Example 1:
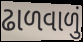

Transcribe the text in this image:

ઢાળવાળું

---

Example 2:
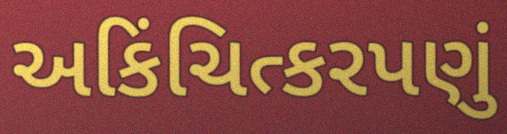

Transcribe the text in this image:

અકિંચિત્કરપણું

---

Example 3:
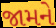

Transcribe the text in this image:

જામને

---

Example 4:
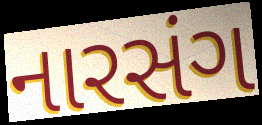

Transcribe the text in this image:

નારસંગ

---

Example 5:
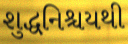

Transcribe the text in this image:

શુદ્ધનિશ્ચયથી